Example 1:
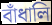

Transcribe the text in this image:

বাঁধালি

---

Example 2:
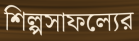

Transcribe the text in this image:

শিল্পসাফল্যের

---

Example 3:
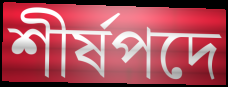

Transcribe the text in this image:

শীর্ষপদে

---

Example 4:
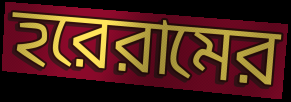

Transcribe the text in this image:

হরেরামের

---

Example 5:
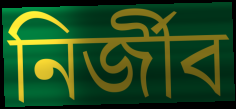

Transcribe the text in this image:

নির্জীব